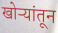
खोऱ्यांतून